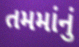
તમમાંનું